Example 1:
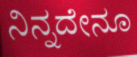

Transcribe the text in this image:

ನಿನ್ನದೇನೂ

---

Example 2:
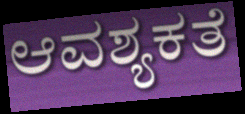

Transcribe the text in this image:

ಆವಶ್ಯಕತೆ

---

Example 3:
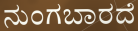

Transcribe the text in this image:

ನುಂಗಬಾರದೆ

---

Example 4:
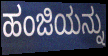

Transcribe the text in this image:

ಹಂಜಿಯನ್ನು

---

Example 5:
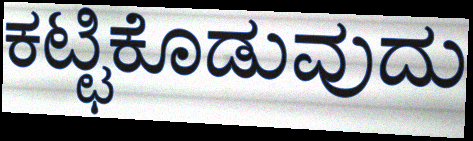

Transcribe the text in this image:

ಕಟ್ಟಿಕೊಡುವುದು